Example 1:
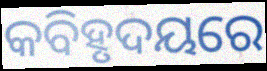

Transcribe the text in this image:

କବିହୃଦୟରେ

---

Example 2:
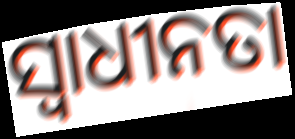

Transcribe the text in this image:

ସ୍ବାଧୀନତା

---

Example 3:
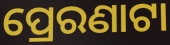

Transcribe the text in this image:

ପ୍ରେରଣାଟା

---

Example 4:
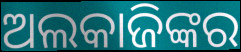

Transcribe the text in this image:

ଅଲକାଜିଙ୍କର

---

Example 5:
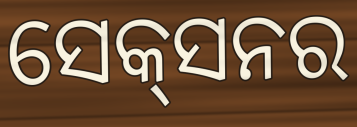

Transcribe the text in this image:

ସେକ୍‌ସନର